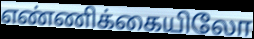
எண்ணிக்கையிலோ